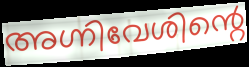
അഗ്നിവേശിന്റെ